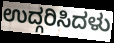
ಉದ್ಗರಿಸಿದಳು